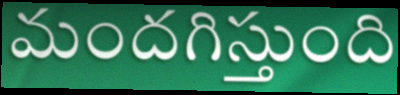
మందగిస్తుంది